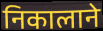
निकालाने